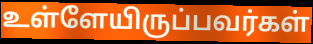
உள்ளேயிருப்பவர்கள்